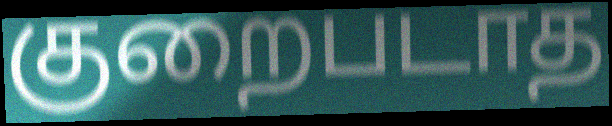
குறைபடாத